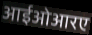
आईओआरए